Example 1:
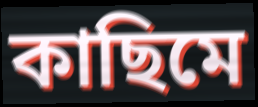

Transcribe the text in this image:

কাছিমে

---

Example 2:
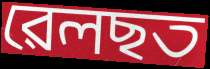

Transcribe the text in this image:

ৱেলছত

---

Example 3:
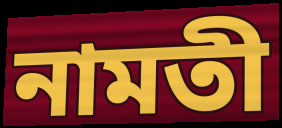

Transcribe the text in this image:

নামতী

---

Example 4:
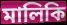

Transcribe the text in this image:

মালিকি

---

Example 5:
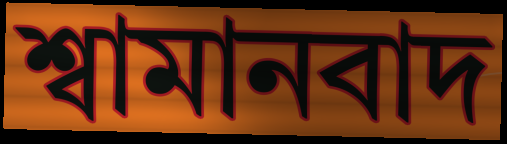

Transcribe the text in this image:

শ্বামানবাদ